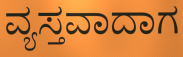
ವ್ಯಸ್ತವಾದಾಗ